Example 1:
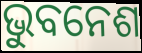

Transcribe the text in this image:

ଭୁବନେଶ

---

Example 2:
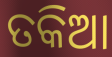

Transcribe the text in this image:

ତକିଆ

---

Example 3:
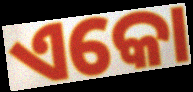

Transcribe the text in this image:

ଏକୋ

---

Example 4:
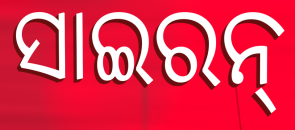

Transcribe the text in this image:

ସାଇରନ୍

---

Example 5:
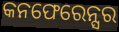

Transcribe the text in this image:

କନଫେରେନ୍ସର